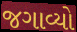
જગાવ્યો